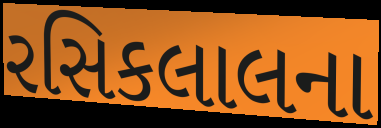
રસિકલાલના